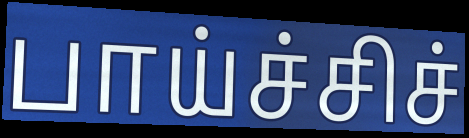
பாய்ச்சிச்